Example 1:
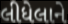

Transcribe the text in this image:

લીધેલાને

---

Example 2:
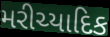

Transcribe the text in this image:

મરીચ્યાદિક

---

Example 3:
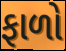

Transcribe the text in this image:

ફાળો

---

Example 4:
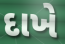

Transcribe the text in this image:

દાખે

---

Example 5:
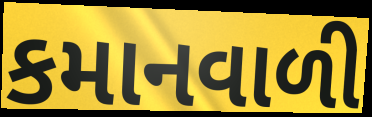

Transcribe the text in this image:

કમાનવાળી